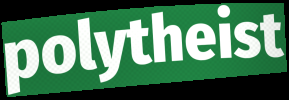
polytheist